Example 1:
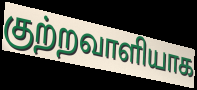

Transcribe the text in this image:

குற்றவாளியாக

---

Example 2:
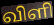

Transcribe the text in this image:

விளி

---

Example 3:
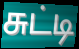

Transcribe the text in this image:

சுட்டி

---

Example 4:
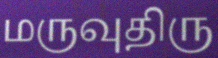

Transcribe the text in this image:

மருவுதிரு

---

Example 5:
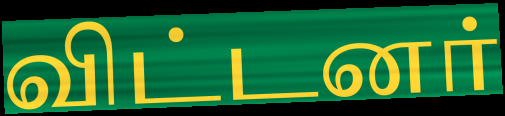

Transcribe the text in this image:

விட்டனர்